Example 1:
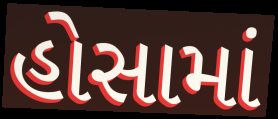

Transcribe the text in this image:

હોસામાં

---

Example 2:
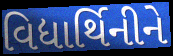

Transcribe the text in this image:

વિદ્યાર્થિનીને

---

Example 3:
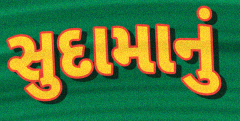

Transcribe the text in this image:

સુદામાનું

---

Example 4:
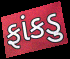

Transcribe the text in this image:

ફાંકડુ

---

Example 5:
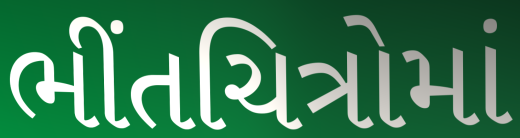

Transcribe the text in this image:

ભીંતચિત્રોમાં